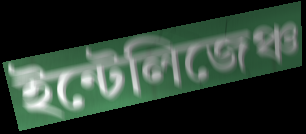
ইন্টেলিজেঞ্চ